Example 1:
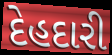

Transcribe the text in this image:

દેહદારી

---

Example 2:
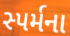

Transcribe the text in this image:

સ્પર્મના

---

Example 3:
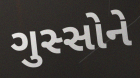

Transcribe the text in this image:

ગુસ્સોને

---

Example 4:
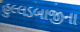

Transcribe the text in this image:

હુલ્લડબાજીના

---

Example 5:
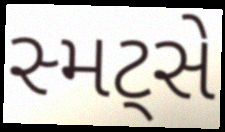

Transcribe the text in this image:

સ્મટ્સે